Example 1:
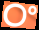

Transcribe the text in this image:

ଠଂ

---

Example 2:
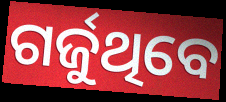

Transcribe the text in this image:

ଗର୍ଜୁଥିବେ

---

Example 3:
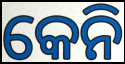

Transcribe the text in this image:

କେନି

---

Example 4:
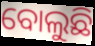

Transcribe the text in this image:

ବୋଲୁଛି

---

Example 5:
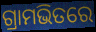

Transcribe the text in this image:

ଗ୍ରାମଭିତରେ